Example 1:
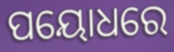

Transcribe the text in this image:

ପୟୋଧରେ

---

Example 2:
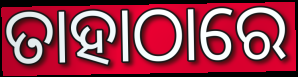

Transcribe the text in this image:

ତାହାଠାରେ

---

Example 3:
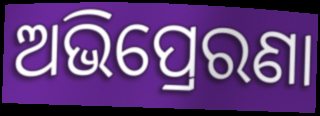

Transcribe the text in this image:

ଅଭିପ୍ରେରଣା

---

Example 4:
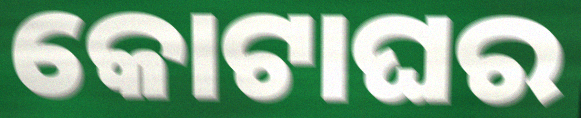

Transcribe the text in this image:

କୋଟାଘର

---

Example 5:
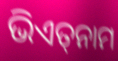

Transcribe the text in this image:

ଭିଏତ୍‌ନାମ